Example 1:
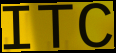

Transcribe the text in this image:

ITC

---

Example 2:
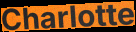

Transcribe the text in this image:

Charlotte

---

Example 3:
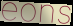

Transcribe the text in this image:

eons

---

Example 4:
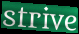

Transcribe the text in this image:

strive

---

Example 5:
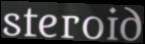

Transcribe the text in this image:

steroid